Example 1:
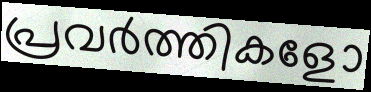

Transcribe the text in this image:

പ്രവർത്തികളോ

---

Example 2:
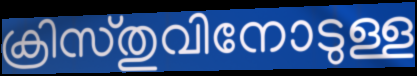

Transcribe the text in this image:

ക്രിസ്തുവിനോടുള്ള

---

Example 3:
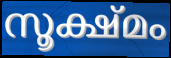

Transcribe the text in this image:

സൂക്ഷ്‌മം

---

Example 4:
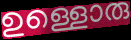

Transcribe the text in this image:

ഉള്ളൊരു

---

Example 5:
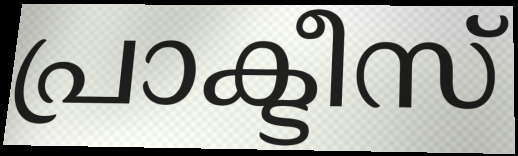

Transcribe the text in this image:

പ്രാക്ടീസ്